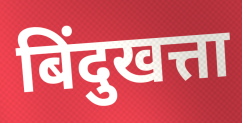
बिंदुखत्ता